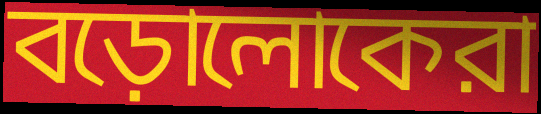
বড়োলোকেরা